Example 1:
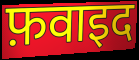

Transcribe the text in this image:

फ़वाइद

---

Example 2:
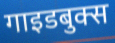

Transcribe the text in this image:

गाइडबुक्स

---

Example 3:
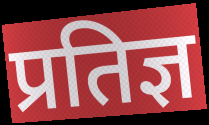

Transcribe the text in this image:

प्रतिज्ञ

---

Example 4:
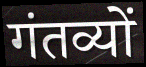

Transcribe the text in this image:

गंतव्यों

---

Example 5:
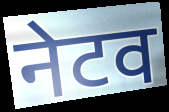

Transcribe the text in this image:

नेटव